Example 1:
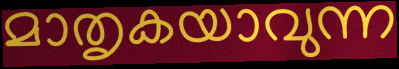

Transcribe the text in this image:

മാതൃകയാവുന്ന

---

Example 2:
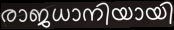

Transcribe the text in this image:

രാജധാനിയായി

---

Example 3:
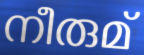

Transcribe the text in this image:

നീരുമ്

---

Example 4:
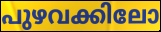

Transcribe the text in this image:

പുഴവക്കിലോ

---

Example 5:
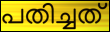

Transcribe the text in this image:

പതിച്ചത്